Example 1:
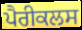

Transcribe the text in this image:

ਪੈਰੀਕਲਸ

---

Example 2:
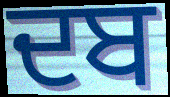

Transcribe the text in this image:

ਦਬ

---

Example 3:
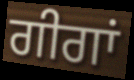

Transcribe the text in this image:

ਗੀਗਾਂ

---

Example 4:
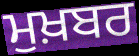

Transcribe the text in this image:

ਮੁਖ਼ਬਰ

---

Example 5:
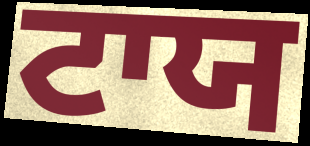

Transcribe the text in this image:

ਟਾਯ